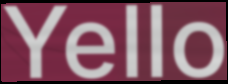
Yello